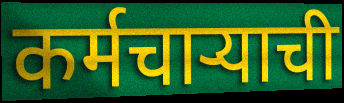
कर्मचाऱ्याची